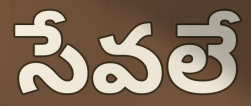
సేవలే